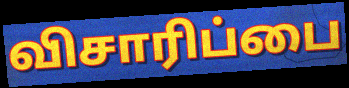
விசாரிப்பை